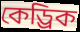
কেড্রিক